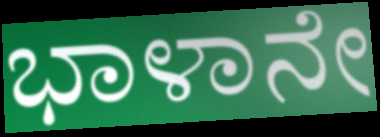
ಭಾಳಾನೇ